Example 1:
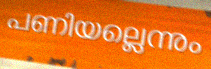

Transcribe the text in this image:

പണിയല്ലെന്നും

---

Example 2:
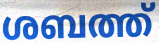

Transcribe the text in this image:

ശബത്ത്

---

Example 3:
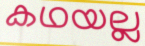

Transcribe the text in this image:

കഥയല്ല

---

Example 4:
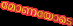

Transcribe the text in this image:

മോണയോടെ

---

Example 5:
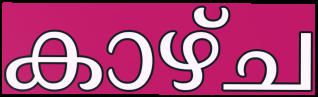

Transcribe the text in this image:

കാഴ്ച